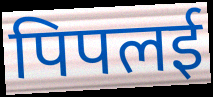
पिपलई